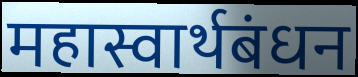
महास्वार्थबंधन